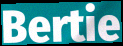
Bertie